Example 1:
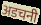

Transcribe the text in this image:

अडचनी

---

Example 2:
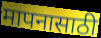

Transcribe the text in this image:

मापनासाठी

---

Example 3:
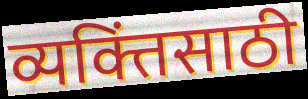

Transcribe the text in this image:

व्यक्तिंसाठी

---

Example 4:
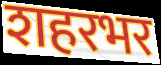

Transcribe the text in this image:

शहरभर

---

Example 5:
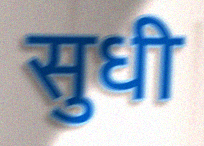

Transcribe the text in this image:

सुधी